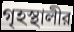
গৃহস্থালীর